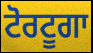
ਟੋਰਟੂਗਾ